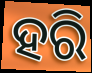
ହରି